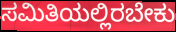
ಸಮಿತಿಯಲ್ಲಿರಬೇಕು